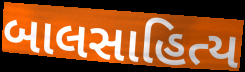
બાલસાહિત્ય